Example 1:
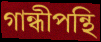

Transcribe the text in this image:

গান্ধীপন্থি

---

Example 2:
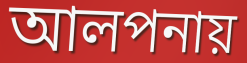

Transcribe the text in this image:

আলপনায়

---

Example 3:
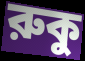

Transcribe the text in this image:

রুকু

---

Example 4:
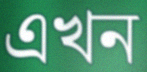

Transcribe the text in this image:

এখন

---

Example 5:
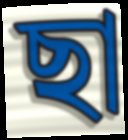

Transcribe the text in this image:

ছা